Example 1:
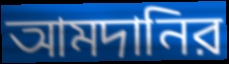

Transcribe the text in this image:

আমদানির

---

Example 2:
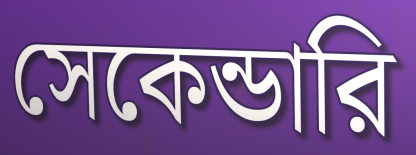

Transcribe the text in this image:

সেকেন্ডারি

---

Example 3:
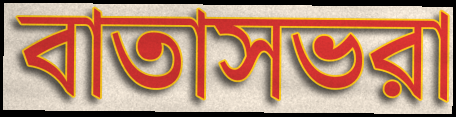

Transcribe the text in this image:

বাতাসভরা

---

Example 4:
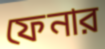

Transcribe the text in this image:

ফেনার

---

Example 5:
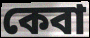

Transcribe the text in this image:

কেবা